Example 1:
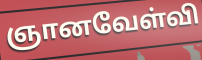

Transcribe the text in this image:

ஞானவேள்வி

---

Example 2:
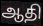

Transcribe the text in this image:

ஆதி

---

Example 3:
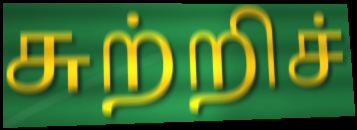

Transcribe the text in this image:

சுற்றிச்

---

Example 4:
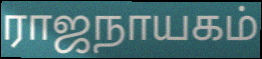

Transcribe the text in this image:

ராஜநாயகம்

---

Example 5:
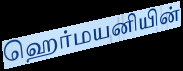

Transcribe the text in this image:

ஹெர்மயனியின்